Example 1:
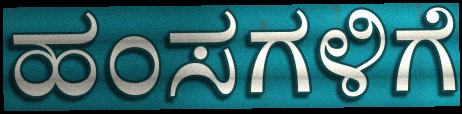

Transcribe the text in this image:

ಹಂಸಗಳಿಗೆ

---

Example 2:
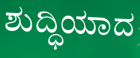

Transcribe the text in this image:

ಶುದ್ಧಿಯಾದ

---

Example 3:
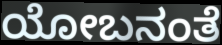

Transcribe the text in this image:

ಯೋಬನಂತೆ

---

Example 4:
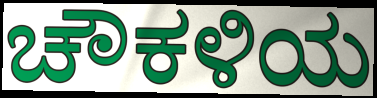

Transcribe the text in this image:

ಚೌಕಳಿಯ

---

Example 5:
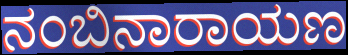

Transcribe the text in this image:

ನಂಬಿನಾರಾಯಣ